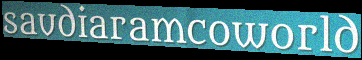
saudiaramcoworld